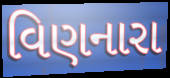
વિણનારા